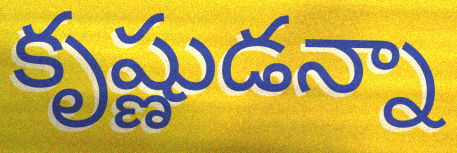
కృష్ణుడన్నా